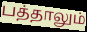
பத்தாலும்